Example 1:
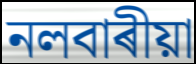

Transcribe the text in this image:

নলবাৰীয়া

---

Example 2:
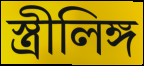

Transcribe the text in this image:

স্ত্ৰীলিঙ্গ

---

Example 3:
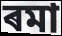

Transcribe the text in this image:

ৰমা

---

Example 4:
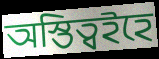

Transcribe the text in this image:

অস্তিত্বইহে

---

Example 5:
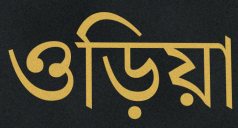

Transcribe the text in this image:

ওড়িয়া